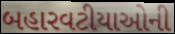
બહારવટીયાઓની